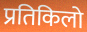
प्रतिकिलो